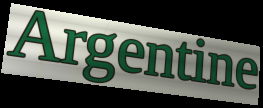
Argentine